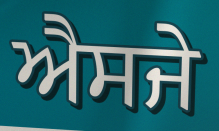
ਐਸਜੇ